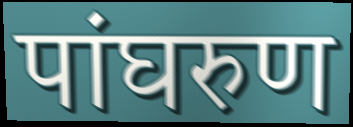
पांघरुण